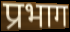
प्रभाग